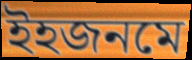
ইহজনমে